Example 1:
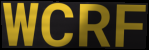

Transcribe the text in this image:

WCRF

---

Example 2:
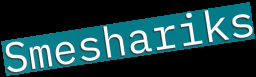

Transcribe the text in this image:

Smeshariks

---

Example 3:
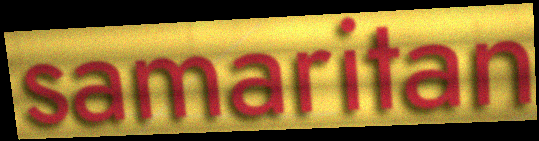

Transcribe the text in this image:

samaritan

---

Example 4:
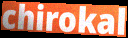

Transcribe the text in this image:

chirokal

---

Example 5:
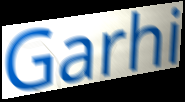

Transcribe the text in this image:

Garhi